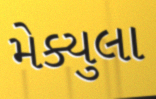
મેક્યુલા